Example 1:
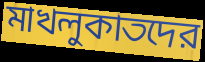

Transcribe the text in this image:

মাখলুকাতদের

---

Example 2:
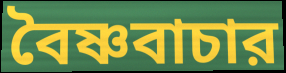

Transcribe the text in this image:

বৈষ্ণবাচার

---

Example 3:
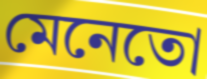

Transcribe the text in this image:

মেনেতো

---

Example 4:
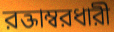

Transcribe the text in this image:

রক্তাম্বরধারী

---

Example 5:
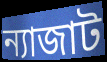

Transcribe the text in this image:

ন্যাজাট